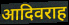
आदिवराह